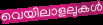
വെയിലാളലുകൾ